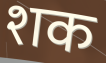
शक